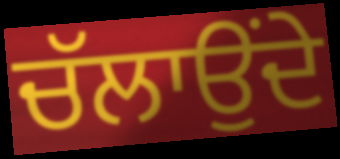
ਚੱਲਾਉਂਦੇ